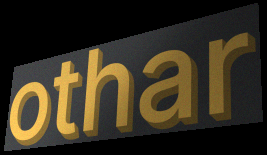
othar